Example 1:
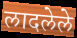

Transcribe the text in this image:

लादलेले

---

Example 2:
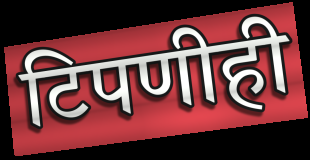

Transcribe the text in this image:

टिपणीही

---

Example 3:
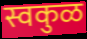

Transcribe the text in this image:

स्वकुळ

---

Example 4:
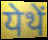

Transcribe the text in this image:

येथें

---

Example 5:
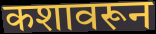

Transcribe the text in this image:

कशावरून